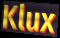
Klux